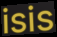
isis